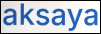
aksaya